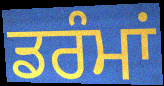
ਡਰੰਮਾਂ